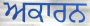
ਅਕਾਰਨ